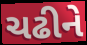
ચઢીને